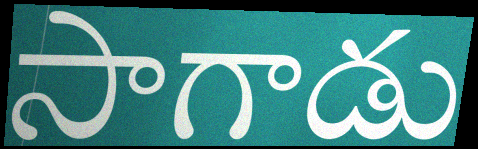
సాగాడు